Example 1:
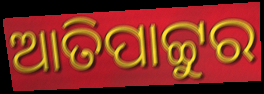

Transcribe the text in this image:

ଆତିପାଟ୍ଟୁର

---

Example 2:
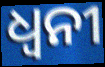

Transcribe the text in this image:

ଧ୍ୱନୀ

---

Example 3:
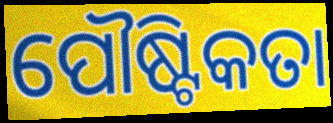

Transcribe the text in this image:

ପୌଷ୍ଟିକତା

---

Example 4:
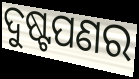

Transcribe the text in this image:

ଦୁଷ୍ଟପଣର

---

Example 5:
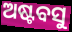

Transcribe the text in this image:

ଅଷ୍ଟବସୁ